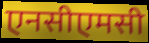
एनसीएमसी